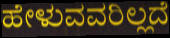
ಹೇಳುವವರಿಲ್ಲದೆ